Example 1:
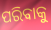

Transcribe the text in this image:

ପରିବାକୁ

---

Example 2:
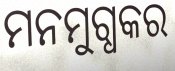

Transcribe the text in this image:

ମନମୁଗ୍ଧକର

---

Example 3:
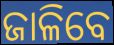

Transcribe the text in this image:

ଜାଳିବେ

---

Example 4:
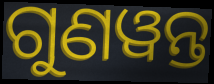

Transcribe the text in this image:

ଗୁଣୱନ୍ତ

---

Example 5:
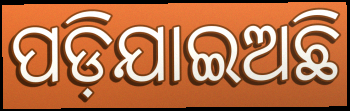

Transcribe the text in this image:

ପଡ଼ିଯାଇଅଛି